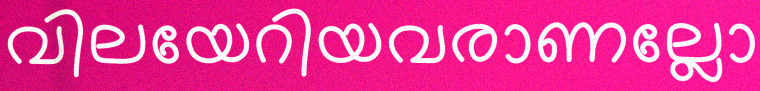
വിലയേറിയവരാണല്ലോ